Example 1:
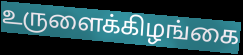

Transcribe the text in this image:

உருளைக்கிழங்கை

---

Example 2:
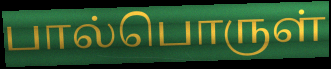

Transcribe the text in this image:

பால்பொருள்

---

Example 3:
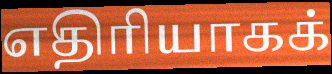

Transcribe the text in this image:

எதிரியாகக்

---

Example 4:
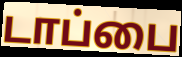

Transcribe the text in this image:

டாப்பை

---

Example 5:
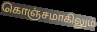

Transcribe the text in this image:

கொஞ்சமாகிலும்